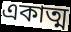
একাত্ম